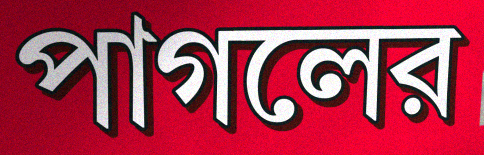
পাগলের